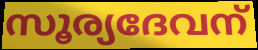
സൂര്യദേവന്